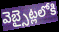
వెబ్సైట్లలోకి